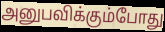
அனுபவிக்கும்போது